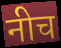
नीच